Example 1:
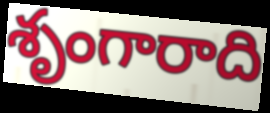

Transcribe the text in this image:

శృంగారాది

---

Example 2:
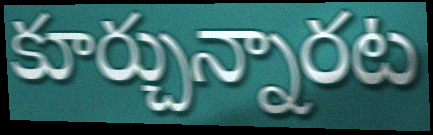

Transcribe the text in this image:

కూర్చున్నారట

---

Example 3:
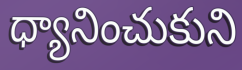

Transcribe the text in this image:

ధ్యానించుకుని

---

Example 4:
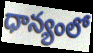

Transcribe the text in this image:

ధాన్యంలో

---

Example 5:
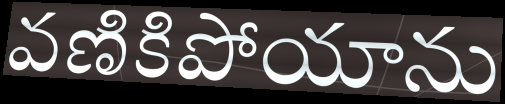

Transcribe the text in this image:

వణికిపోయాను